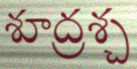
శూద్రశ్చ